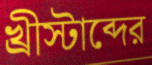
খ্রীস্টাব্দের